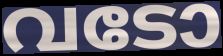
വടോ